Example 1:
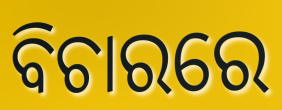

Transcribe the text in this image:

ବିଚାରରେ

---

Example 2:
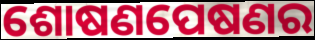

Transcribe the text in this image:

ଶୋଷଣପେଷଣର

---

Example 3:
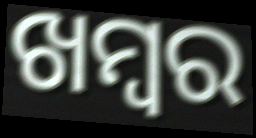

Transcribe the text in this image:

ଖମ୍ବର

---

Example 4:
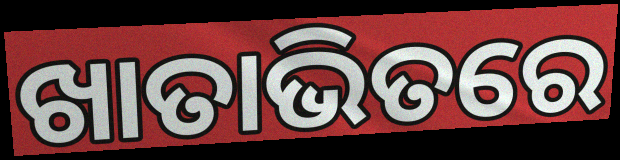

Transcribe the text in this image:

ଖାତାଭିତରେ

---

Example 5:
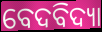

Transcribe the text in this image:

ବେଦବିଦ୍ୟା